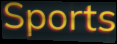
Sports